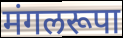
मंगलरूपा